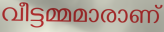
വീട്ടമ്മമാരാണ്